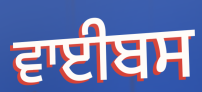
ਵਾਈਬਸ